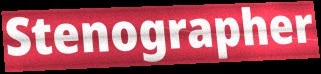
Stenographer